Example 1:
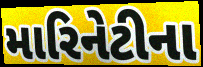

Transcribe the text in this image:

મારિનેટીના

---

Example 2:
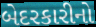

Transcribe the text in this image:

બેદરકારીનો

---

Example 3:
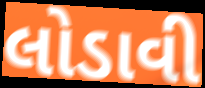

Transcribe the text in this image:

લોડાવી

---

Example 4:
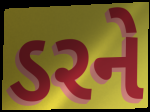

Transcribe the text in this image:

ડરને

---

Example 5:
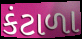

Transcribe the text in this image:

કંટાળા